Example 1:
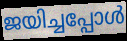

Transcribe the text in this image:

ജയിച്ചപ്പോൾ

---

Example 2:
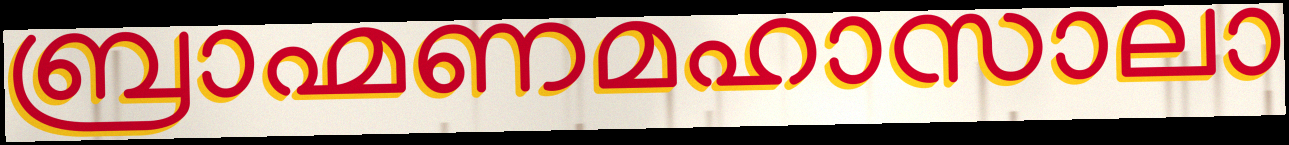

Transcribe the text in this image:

ബ്രാഹ്മണമഹാസാലാ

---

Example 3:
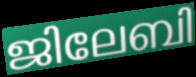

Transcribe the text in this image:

ജിലേബി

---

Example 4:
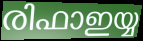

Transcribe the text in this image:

രിഫാഇയ്യ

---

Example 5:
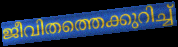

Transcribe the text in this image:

ജീവിതത്തെക്കുറിച്ച്